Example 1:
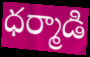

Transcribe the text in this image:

ధర్మాడి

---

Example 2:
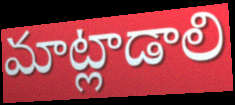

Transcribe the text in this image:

మాట్లాడాలి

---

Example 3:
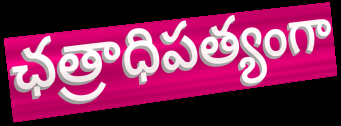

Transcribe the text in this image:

ఛత్రాధిపత్యంగా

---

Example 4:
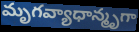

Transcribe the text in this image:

మృగవ్యాధాన్మృగా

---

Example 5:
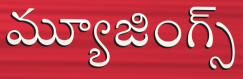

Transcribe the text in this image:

మ్యూజింగ్స్